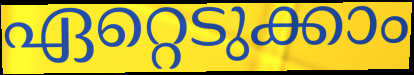
ഏറ്റെടുക്കാം